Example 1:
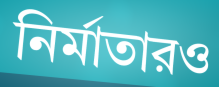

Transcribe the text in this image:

নির্মাতারও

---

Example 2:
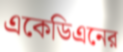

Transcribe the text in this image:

একেডিএনের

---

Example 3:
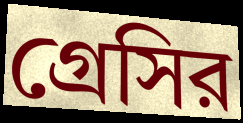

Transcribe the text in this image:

গ্রেসির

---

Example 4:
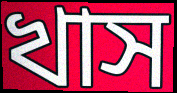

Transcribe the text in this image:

খাস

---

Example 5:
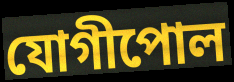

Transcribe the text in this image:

যোগীপোল